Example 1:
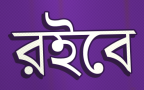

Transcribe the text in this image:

রইবে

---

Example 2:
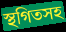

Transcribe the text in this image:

স্থগিতসহ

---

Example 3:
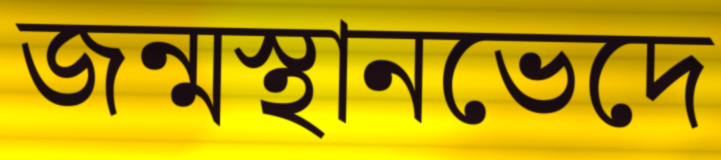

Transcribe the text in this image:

জন্মস্থানভেদে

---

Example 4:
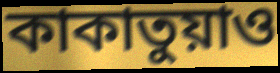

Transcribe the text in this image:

কাকাতুয়াও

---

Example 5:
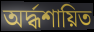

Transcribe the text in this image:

অর্দ্ধশায়িত